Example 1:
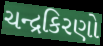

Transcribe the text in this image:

ચન્દ્રકિરણો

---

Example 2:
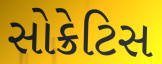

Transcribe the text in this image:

સોક્રેટિસ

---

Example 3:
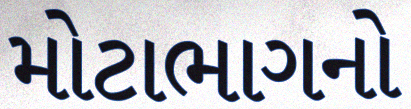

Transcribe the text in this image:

મોટાભાગનો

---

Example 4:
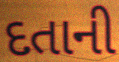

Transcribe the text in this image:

દતાની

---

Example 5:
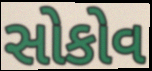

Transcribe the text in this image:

સોકોવ